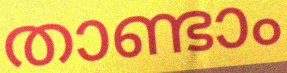
താണ്ടാം